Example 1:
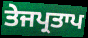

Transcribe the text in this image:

ਤੇਜਪ੍ਰਤਾਪ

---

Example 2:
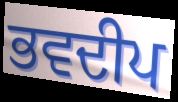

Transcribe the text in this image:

ਭਵਦੀਪ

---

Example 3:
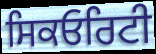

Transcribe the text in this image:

ਸਿਕਓਰਿਟੀ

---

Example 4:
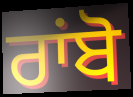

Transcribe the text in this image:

ਰਾਂਬੋ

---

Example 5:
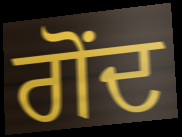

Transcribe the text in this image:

ਗੋਂਦ